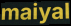
maiyal